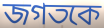
জগতকে